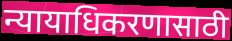
न्यायाधिकरणासाठी